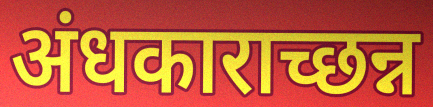
अंधकाराच्छन्न